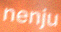
nenju